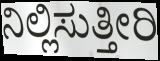
ನಿಲ್ಲಿಸುತ್ತೀರಿ